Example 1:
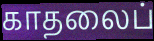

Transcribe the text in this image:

காதலைப்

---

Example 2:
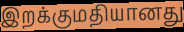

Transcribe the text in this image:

இறக்குமதியானது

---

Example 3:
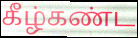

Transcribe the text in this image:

கீழ்கண்ட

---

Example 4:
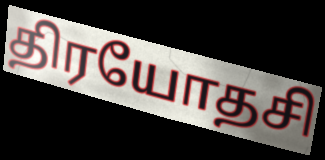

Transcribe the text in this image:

திரயோதசி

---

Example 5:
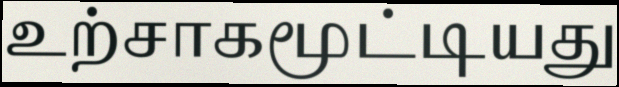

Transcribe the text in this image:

உற்சாகமூட்டியது